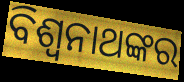
ବିଶ୍ୱନାଥଙ୍କର